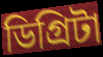
ডিগ্রিটা